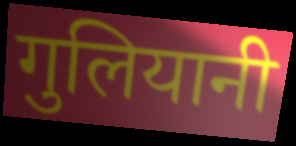
गुलियानी